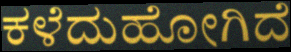
ಕಳೆದುಹೋಗಿದೆ